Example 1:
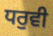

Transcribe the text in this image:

ਧਰੁਵੀ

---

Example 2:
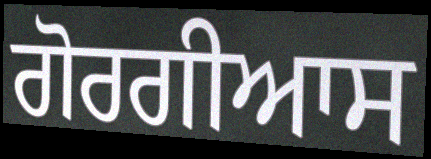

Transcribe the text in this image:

ਗੋਰਗੀਆਸ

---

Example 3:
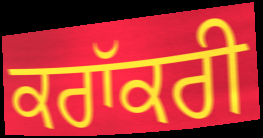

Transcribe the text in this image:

ਕਰਾੱਕਰੀ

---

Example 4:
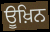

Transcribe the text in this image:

ਊਖ਼ਿਨ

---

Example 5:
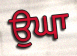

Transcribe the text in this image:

ਉਘਾ